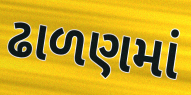
ઢાળણમાં